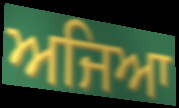
ਅਜਿਆ